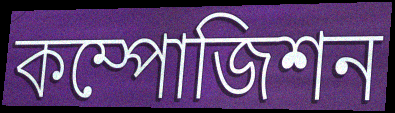
কম্পোজিশন